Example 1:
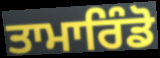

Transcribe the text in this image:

ਤਾਮਾਰਿੰਡੋ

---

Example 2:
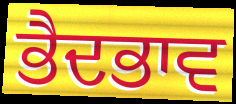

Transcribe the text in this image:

ਭੈਦਭਾਵ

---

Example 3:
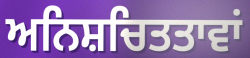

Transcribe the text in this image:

ਅਨਿਸ਼ਚਿਤਤਾਵਾਂ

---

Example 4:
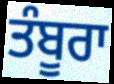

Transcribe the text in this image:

ਤੰਬੂਰਾ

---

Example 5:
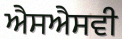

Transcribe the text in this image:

ਐਸਐਸਵੀ